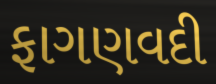
ફાગણવદી